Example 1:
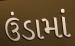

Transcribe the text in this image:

ઉંડામાં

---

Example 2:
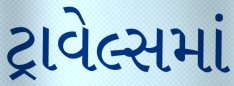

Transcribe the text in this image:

ટ્રાવેલ્સમાં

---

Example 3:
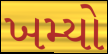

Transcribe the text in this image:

ખમ્યો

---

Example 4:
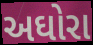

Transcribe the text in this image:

અઘોરા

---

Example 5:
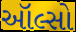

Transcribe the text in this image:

ઑલ્સો